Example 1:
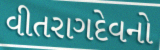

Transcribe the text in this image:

વીતરાગદેવનો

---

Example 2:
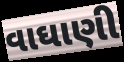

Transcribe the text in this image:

વાઘાણી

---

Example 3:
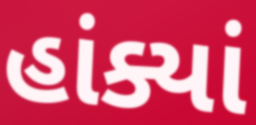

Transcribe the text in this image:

હાંક્યાં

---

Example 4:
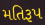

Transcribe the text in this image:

મતિરૂપ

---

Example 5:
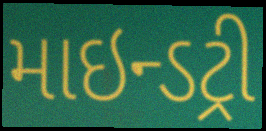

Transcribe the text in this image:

માઇન્ડટ્રી